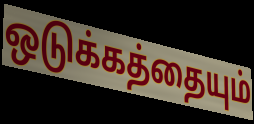
ஒடுக்கத்தையும்